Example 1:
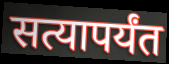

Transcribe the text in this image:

सत्यापर्यंत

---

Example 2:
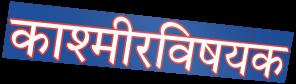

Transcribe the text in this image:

काश्मीरविषयक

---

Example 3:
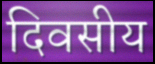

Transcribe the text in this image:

दिवसीय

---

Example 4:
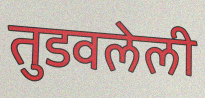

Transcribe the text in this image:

तुडवलेली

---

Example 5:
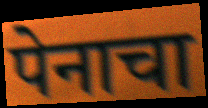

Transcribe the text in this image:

पेनाचा